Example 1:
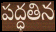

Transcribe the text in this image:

పద్ధతిన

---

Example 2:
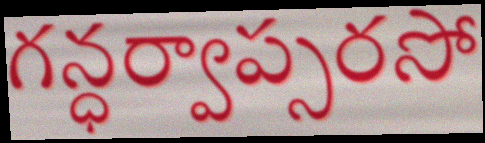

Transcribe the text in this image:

గన్ధర్వాప్సరసో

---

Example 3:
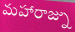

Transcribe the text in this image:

మహారాజ్ను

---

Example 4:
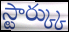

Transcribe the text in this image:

స్టార్క్కు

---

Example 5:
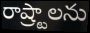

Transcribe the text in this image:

రాష్ర్టాలను